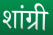
शांग्री